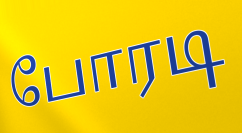
போரடி